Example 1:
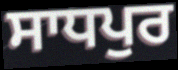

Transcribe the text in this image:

ਸਾਧਪੁਰ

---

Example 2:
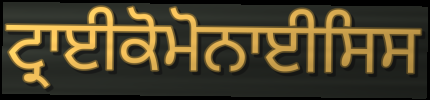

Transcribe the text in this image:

ਟ੍ਰਾਈਕੋਮੋਨਾਈਸਿਸ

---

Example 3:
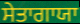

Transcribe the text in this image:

ਸੇਤਾਗਾਯਾ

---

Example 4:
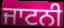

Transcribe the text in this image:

ਜਾਟਨੀ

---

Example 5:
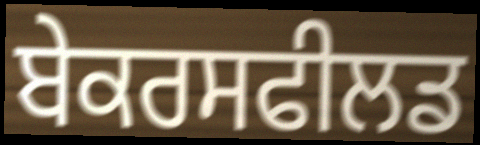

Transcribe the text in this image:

ਬੇਕਰਸਫੀਲਡ